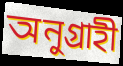
অনুগ্রাহী